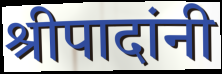
श्रीपादांनी